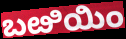
ಬೞಿಯಿಂ